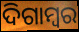
ଦିଗାମ୍ଵର